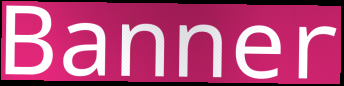
Banner